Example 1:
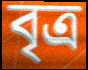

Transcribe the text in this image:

বৃত্ৰ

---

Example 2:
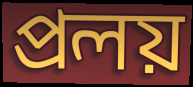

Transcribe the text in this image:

প্ৰলয়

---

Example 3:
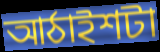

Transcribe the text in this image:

আঠাইশটা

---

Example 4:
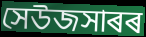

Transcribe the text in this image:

সেউজসাৰৰ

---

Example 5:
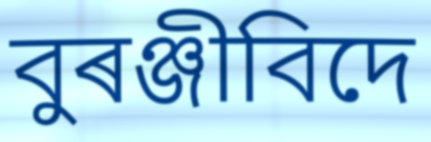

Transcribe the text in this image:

বুৰঞ্জীবিদে